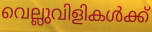
വെല്ലുവിളികൾക്ക്